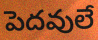
పెదవులే